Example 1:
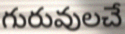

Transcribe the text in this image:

గురువులచే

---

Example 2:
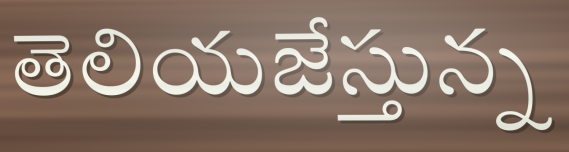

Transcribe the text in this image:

తెలియజేస్తున్న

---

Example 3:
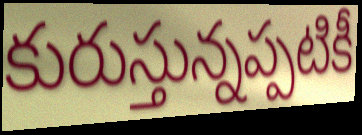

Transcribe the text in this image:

కురుస్తున్నప్పటికీ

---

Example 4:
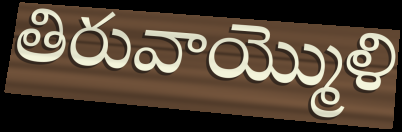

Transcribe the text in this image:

తిరువాయ్మొళి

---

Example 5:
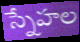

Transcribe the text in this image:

స్నేహల